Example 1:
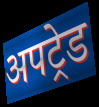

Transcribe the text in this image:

अपट्रेड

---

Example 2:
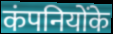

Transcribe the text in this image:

कंपनियोंके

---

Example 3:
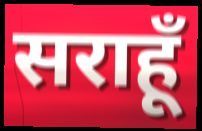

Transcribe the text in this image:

सराहूँ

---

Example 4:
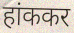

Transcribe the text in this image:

हांककर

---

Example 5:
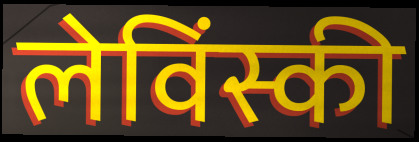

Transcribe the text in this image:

लेविंस्की